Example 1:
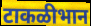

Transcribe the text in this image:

टाकळीभान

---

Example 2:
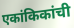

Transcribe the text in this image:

एकांकिकांची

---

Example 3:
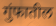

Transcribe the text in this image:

गुंफातील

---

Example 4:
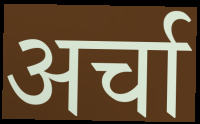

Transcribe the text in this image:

अर्चा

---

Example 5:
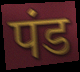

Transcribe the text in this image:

पंड